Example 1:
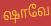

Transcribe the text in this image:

ஷாவே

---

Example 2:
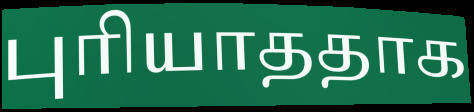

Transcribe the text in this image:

புரியாததாக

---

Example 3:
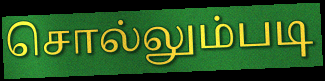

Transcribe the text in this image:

சொல்லும்படி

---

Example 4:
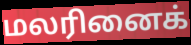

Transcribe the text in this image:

மலரினைக்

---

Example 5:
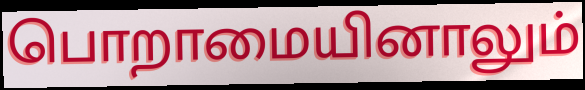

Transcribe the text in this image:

பொறாமையினாலும்